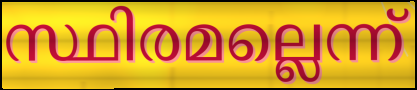
സ്ഥിരമല്ലെന്ന്